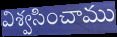
విశ్వసించాము